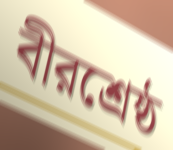
বীরশ্রেষ্ঠ